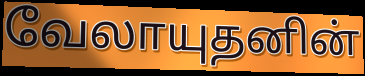
வேலாயுதனின்